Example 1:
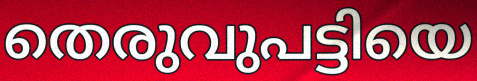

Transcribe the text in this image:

തെരുവുപട്ടിയെ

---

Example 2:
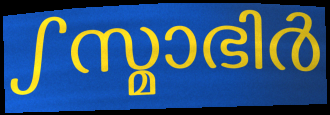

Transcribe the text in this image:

ഽസ്മാഭിർ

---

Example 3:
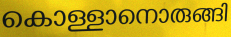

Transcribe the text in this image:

കൊള്ളാനൊരുങ്ങി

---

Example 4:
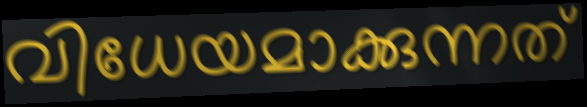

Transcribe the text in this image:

വിധേയമാക്കുന്നത്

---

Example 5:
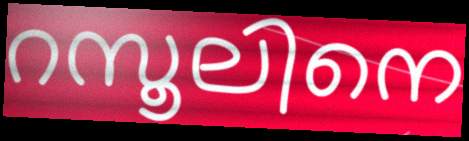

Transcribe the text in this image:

റസൂലിനെ